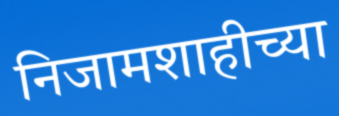
निजामशाहीच्या